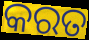
କରତ